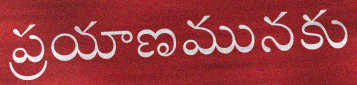
ప్రయాణమునకు